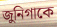
জুনিগাকে